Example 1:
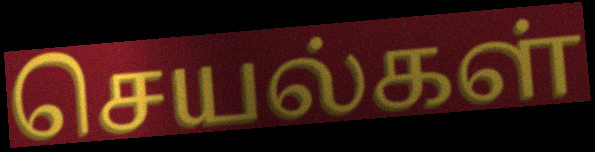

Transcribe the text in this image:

செயல்கள்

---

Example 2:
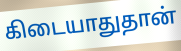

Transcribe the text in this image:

கிடையாதுதான்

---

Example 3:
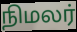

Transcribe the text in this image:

நிமலர்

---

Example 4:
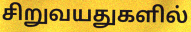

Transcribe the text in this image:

சிறுவயதுகளில்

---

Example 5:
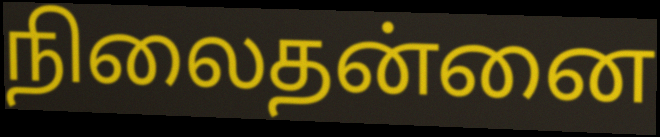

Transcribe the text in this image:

நிலைதன்னை